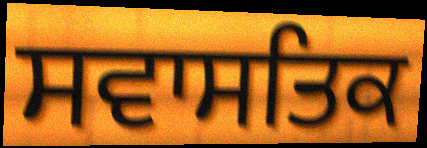
ਸਵਾਸਤਿਕ